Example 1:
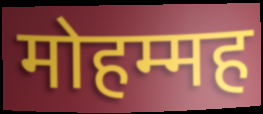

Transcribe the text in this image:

मोहम्मह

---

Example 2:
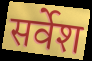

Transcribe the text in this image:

सर्वेश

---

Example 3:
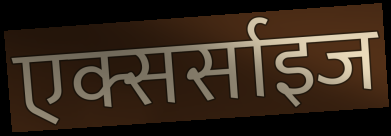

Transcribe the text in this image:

एक्सर्साइज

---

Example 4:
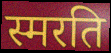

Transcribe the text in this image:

स्मरति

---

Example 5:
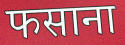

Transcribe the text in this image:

फसाना